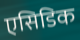
एसिडिक